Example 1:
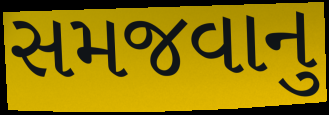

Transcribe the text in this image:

સમજવાનુ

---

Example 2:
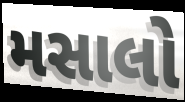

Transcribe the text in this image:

મસાલો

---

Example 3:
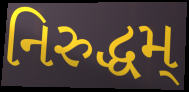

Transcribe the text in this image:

નિરુદ્ધમ્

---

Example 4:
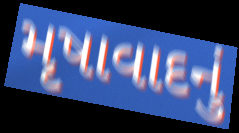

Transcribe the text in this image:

મૃષાવાદનું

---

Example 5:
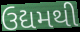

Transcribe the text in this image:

ઉદ્યમથી